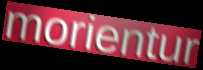
morientur